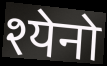
श्येनो